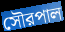
সৌরপাল